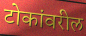
टोकांवरील